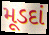
મૂડદાં